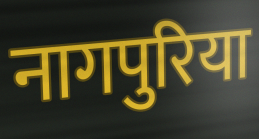
नागपुरिया